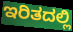
ಇರಿತದಲ್ಲಿ